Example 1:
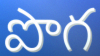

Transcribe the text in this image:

పొగ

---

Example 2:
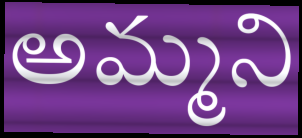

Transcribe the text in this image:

అమ్మని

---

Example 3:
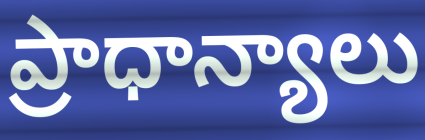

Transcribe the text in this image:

ప్రాధాన్యాలు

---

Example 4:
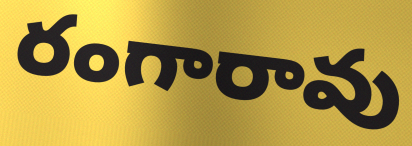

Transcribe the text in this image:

రంగారావు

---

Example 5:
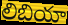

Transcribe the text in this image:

లిబియా